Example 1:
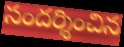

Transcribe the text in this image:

సందర్శించిన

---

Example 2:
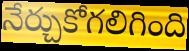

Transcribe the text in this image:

నేర్చుకోగలిగింది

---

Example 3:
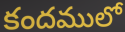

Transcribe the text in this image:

కందములో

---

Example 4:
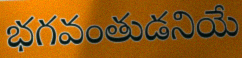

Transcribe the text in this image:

భగవంతుడనియే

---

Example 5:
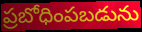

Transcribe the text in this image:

ప్రబోధింపబడును